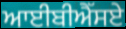
ਆਈਬੀਐੱਸਏ